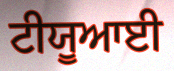
ਟੀਯੂਆਈ